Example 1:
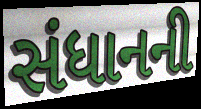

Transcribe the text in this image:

સંધાનની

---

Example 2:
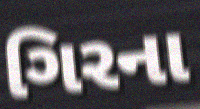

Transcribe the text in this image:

ગિરના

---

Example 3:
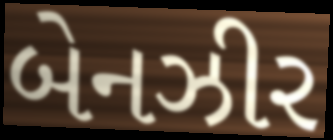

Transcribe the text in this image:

બેનઝીર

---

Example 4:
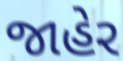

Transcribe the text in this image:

જાહેર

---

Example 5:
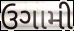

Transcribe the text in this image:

ઉગામી